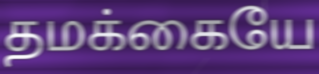
தமக்கையே